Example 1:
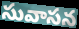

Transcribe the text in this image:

సువాసన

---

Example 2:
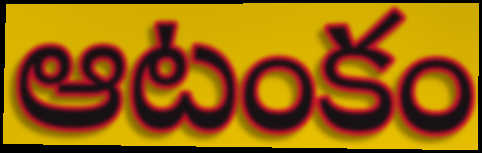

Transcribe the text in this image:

ఆటంకం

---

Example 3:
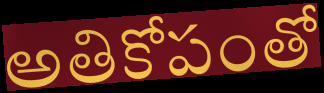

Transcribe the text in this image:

అతికోపంతో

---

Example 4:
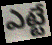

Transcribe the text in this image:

ఎట్టే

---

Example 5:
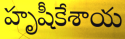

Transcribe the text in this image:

హృషీకేశాయ